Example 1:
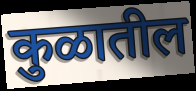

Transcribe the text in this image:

कुळातील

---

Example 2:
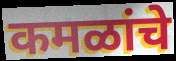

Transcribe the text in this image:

कमळांचे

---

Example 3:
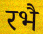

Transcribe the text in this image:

रभै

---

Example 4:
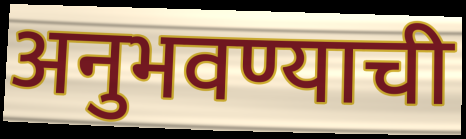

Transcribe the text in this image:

अनुभवण्याची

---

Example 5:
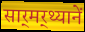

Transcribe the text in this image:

सार्मर्थ्यानें